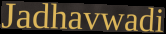
Jadhavwadi